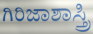
ಗಿರಿಜಾಶಾಸ್ತ್ರಿ